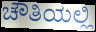
ಚೌತಿಯಲ್ಲಿ